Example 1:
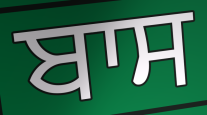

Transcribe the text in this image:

ਬਾਸ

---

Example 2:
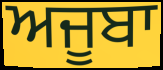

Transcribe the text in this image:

ਅਜੂਬਾ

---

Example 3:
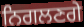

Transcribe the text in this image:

ਨਿਗਲਣਗੇ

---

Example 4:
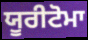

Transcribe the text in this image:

ਯੂਰੀਟੋਮਾ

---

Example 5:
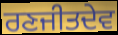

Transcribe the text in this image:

ਰਣਜੀਤਦੇਵ